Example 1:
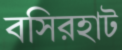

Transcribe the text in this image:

বসিরহাট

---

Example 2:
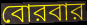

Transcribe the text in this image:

বোরবার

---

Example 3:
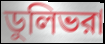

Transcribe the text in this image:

ডুলিভরা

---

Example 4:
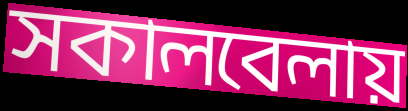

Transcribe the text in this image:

সকালবেলায়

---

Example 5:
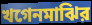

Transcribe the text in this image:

খগেনমাঝির